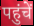
पहुंचें